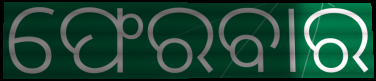
ଫେରବାର